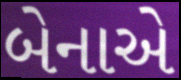
બેનાએ